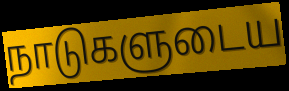
நாடுகளுடைய